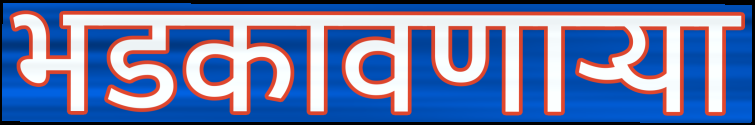
भडकावणाऱ्या